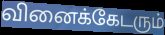
வினைக்கேடரும்